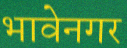
भावेनगर